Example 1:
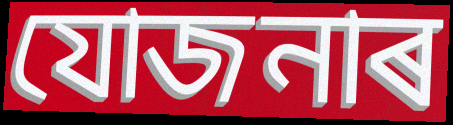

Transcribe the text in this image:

যোজনাৰ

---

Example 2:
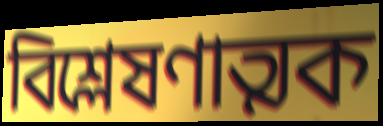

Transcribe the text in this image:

বিশ্লেষণাত্মক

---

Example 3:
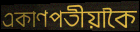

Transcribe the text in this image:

একাণপতীয়াকৈ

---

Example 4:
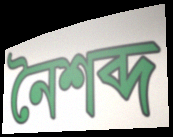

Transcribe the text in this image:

নৈশব্দ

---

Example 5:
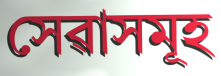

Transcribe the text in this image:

সেৱাসমূহ